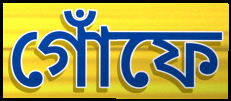
গোঁফে